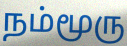
நம்மூரு